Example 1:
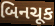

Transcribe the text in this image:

બિનચૂક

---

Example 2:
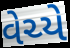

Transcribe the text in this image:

વેચ્યે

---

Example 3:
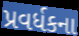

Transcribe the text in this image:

પ્રવર્ધકના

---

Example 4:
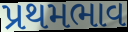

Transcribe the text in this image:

પ્રથમભાવ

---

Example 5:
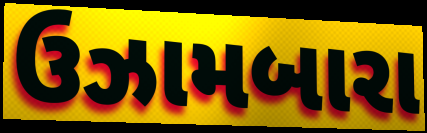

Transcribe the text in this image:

ઉઝામબારા